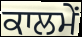
ਕਾਲਮੇਂ